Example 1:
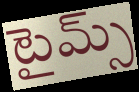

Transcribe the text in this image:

టైమ్స్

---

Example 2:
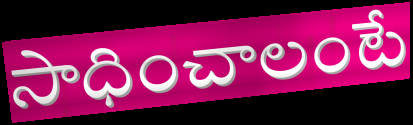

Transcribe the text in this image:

సాధించాలంటే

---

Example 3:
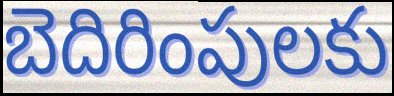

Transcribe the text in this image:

బెదిరింపులకు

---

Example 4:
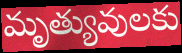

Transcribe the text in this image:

మృత్యువులకు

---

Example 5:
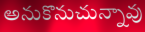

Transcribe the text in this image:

అనుకొనుచున్నావు